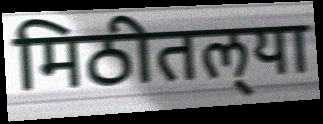
मिठीतल्या